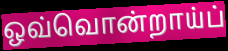
ஒவ்வொன்றாய்ப்